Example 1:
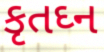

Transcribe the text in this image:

કૃતઘ્ન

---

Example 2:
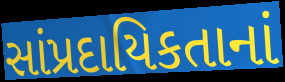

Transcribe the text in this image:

સાંપ્રદાયિકતાનાં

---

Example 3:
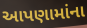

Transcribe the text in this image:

આપણામાંના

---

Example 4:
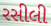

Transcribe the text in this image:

રસીલી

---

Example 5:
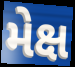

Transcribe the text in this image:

મેક્ષ